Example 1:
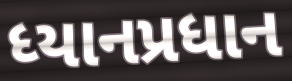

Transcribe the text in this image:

ધ્યાનપ્રધાન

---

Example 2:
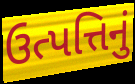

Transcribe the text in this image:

ઉત્પત્તિનું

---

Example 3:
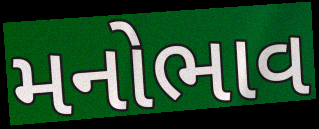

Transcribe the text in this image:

મનોભાવ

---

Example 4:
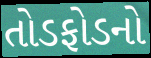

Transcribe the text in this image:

તોડફોડનો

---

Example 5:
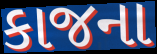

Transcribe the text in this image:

કાજના